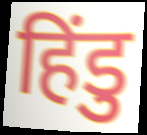
हिंडु